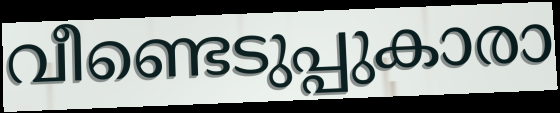
വീണ്ടെടുപ്പുകാരാ